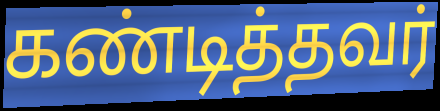
கண்டித்தவர்